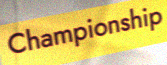
Championship